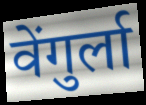
वेंगुर्ला